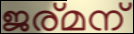
ജര്മന്